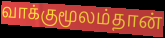
வாக்குமூலம்தான்